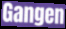
Gangen